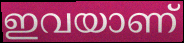
ഇവയാണ്